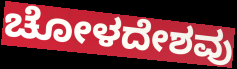
ಚೋಳದೇಶವು